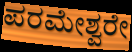
ಪರಮೇಶ್ವರೇ